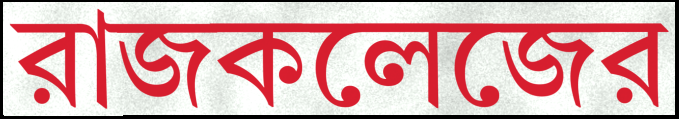
রাজকলেজের